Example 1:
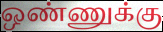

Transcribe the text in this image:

ஒண்ணுக்கு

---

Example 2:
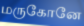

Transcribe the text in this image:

மருகோனே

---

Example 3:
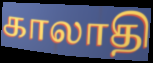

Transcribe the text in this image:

காலாதி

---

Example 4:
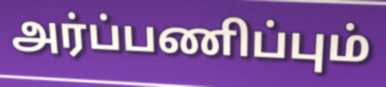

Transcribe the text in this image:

அர்ப்பணிப்பும்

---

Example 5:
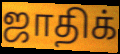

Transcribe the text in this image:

ஜாதிக்